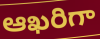
ఆఖరిగా